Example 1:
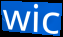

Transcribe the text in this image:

wic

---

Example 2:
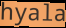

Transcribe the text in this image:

hyala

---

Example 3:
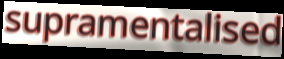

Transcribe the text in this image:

supramentalised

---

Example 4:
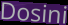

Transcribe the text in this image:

Dosini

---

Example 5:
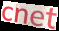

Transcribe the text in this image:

cnet